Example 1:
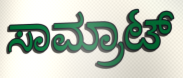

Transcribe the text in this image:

ಸಾಮ್ರಾಟ್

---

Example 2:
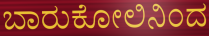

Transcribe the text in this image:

ಬಾರುಕೋಲಿನಿಂದ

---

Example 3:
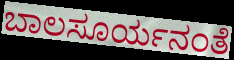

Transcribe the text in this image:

ಬಾಲಸೂರ್ಯನಂತೆ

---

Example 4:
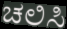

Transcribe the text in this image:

ಚಲಿಸಿ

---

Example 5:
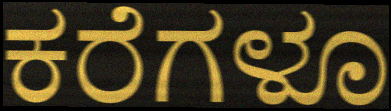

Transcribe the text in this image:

ಕರೆಗಳೂ